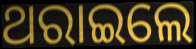
ଥରାଇଲେ